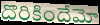
దొరికిందేమో